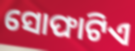
ସୋଫାଟିଏ